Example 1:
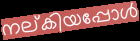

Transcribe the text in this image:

നല്കിയപ്പോൾ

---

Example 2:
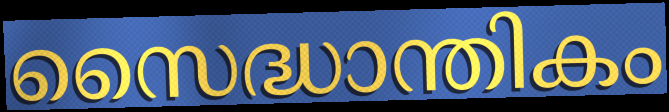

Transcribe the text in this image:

സൈദ്ധാന്തികം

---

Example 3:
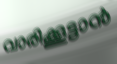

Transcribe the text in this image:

വാരിക്കൂട്ടാൻ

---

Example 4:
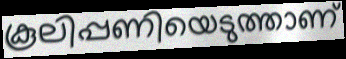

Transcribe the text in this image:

കൂലിപ്പണിയെടുത്താണ്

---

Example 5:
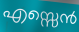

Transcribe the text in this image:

എസ്സെൻ